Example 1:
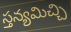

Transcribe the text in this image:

స్తన్యమిచ్చి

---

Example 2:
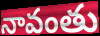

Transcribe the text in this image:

నావంతు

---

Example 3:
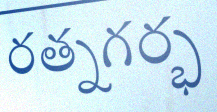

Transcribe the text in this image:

రత్నగర్భ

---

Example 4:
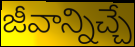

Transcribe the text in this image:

జీవాన్నిచ్చే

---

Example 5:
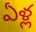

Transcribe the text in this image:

ఏళ్ల